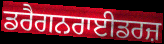
ਡਰੈਗਨਰਾਈਡਰਜ਼